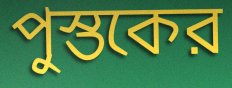
পুস্তকের